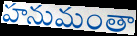
హనుమంతా